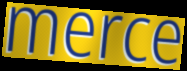
merce